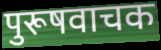
पुरूषवाचक